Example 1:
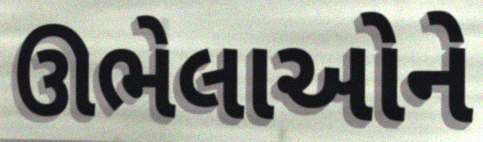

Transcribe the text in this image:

ઊભેલાઓને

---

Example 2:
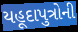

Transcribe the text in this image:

યહૂદાપુત્રોની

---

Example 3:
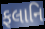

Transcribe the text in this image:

ફલાનિ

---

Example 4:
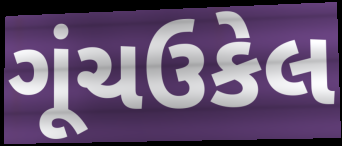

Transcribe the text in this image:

ગૂંચઉકેલ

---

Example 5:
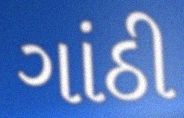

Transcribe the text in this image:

ગાંઠી